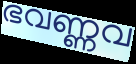
ഭവണ്ണവ